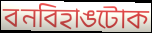
বনবিহাঙটোক